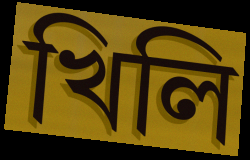
খিলি